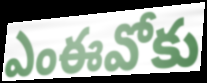
ఎంఈవోకు